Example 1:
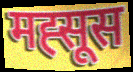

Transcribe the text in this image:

मह्सूस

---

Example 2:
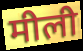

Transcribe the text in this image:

मीली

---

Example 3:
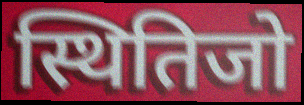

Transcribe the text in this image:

स्थितिजो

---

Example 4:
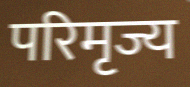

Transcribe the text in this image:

परिमृज्य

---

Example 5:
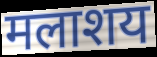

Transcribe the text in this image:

मलाशय